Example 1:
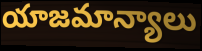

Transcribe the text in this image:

యాజమాన్యాలు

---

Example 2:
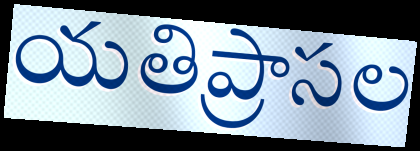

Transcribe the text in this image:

యతిప్రాసల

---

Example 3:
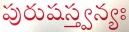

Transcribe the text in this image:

పురుషస్త్వన్యః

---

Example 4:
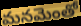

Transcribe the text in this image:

మనమెంతో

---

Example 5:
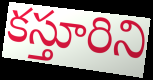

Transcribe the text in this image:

కస్తూరిని